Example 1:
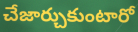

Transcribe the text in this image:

చేజార్చుకుంటారో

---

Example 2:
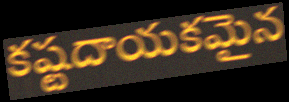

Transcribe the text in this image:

కష్టదాయకమైన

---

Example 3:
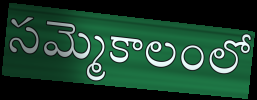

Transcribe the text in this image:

సమ్మెకాలంలో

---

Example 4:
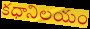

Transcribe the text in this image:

కధానిలయం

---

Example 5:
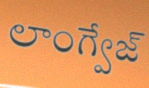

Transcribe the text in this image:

లాంగ్వేజ్